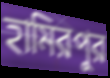
হামিরপুর